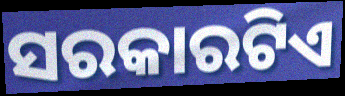
ସରକାରଟିଏ